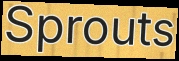
Sprouts